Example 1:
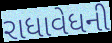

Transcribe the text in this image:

રાધાવેધની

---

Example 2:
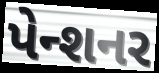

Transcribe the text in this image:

પેન્શનર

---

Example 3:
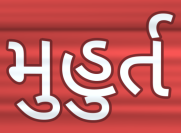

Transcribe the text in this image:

મુહુર્ત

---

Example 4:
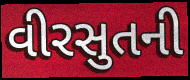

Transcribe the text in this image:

વીરસુતની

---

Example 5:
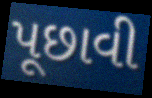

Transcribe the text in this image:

પૂછાવી